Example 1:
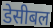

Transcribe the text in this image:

डेसीबल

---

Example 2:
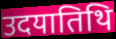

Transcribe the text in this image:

उदयातिथि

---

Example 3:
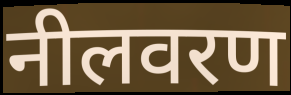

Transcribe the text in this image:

नीलवरण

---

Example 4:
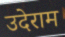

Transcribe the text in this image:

उदेराम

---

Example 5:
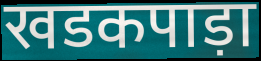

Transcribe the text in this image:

खडकपाड़ा